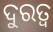
ଦୁରତ୍ଵ